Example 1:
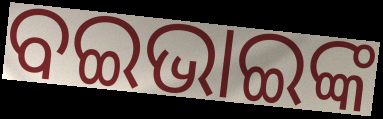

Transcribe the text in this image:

ବଇଭାଇଙ୍କ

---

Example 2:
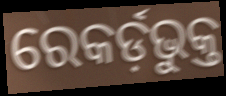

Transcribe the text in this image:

ରେକର୍ଡ଼ଭୁକ୍ତ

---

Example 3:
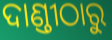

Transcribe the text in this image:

ଦାଣ୍ଡୀଠାରୁ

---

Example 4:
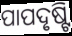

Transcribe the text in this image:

ପାପଦୃଷ୍ଟି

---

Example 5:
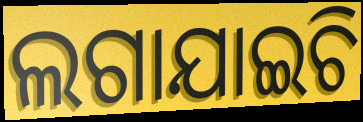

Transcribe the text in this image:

ଲଗାଯାଇଚି